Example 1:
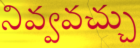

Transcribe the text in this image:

నివ్వవచ్చు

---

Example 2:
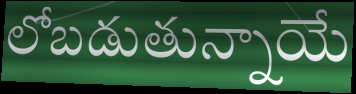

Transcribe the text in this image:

లోబడుతున్నాయే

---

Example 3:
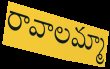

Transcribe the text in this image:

రావాలమ్మా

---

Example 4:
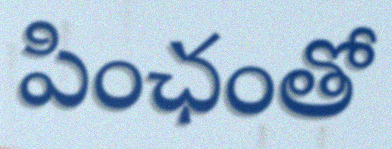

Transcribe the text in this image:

పింఛంతో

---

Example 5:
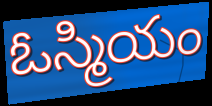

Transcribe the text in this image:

ఓస్మియం